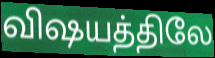
விஷயத்திலே